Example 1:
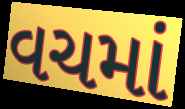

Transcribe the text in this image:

વચમાં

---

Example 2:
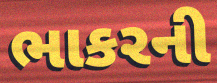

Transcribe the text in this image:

ભાકરની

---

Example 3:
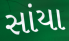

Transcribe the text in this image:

સાંયા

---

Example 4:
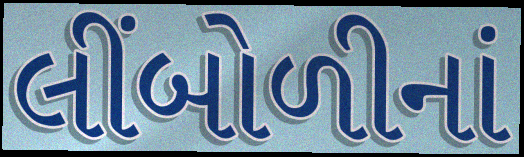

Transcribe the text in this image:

લીંબોળીનાં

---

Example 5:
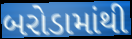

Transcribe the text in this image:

બરોડામાંથી